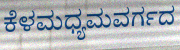
ಕೆಳಮಧ್ಯಮವರ್ಗದ